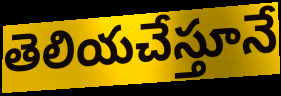
తెలియచేస్తూనే